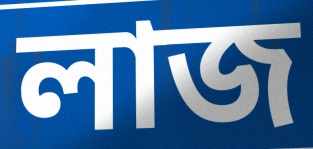
লাজ